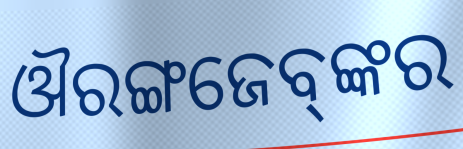
ଔରଙ୍ଗଜେବ୍‌ଙ୍କର